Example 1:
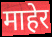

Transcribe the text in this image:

माहेर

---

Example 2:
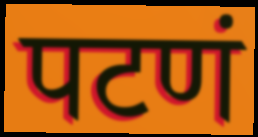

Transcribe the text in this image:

पटणं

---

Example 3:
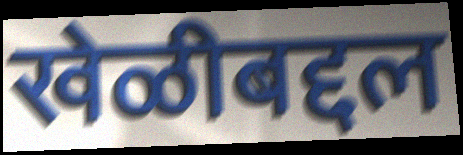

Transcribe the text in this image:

खेळीबद्दल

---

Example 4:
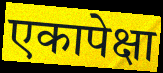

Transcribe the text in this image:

एकापेक्षा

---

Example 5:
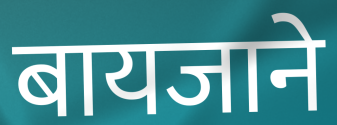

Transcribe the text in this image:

बायजाने